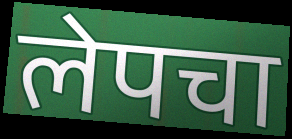
लेपचा